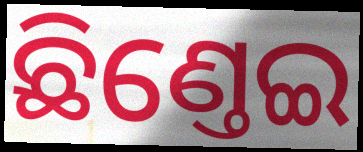
ଛିଣ୍ତେଇ